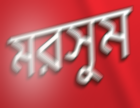
মরসুম